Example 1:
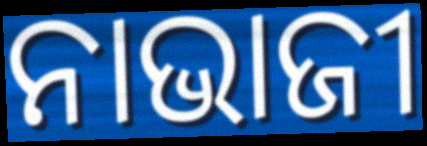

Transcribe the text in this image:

ନାଭାଜୀ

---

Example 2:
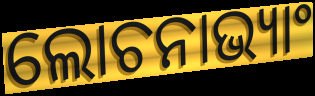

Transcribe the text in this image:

ଲୋଚନାଭ୍ୟାଂ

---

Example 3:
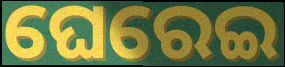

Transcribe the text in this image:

ଘେରେଇ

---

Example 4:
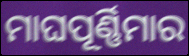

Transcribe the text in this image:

ମାଘପୂର୍ଣ୍ଣିମାର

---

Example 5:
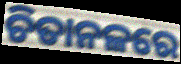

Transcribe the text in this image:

ଚିତାନଳରେ